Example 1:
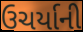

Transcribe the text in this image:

ઉચર્યાની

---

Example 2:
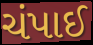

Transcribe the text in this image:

ચંપાઈ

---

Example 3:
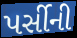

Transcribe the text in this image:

પર્સીની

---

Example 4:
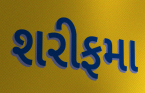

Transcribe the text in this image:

શરીફમા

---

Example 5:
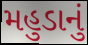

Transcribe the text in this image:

મહુડાનું